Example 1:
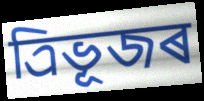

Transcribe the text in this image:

ত্ৰিভূজৰ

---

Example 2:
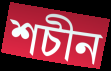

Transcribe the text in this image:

শচীন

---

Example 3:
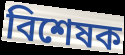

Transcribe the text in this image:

বিশেষক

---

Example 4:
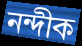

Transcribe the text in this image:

নন্দীক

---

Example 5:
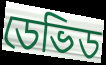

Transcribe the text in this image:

ডেভিড